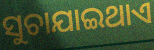
ସୁଚାଯାଇଥାଏ